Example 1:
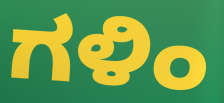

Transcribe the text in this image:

ಗಳಿಂ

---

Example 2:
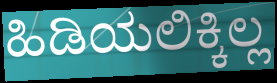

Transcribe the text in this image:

ಹಿಡಿಯಲಿಕ್ಕಿಲ್ಲ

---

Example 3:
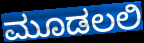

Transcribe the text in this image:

ಮೂಡಲಲಿ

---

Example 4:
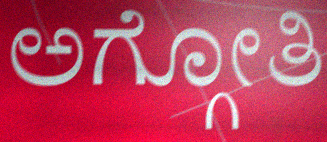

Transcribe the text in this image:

ಅಗ್ಗೋತಿ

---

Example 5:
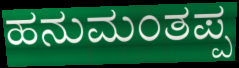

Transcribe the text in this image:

ಹನುಮಂತಪ್ಪ